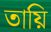
তায়ি